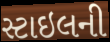
સ્ટાઇલની